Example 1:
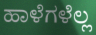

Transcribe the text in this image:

ಹಾಳೆಗಳೆಲ್ಲ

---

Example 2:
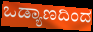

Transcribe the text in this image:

ಒಡ್ಯಾಣದಿಂದ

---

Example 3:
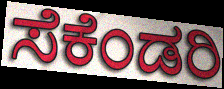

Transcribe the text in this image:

ಸೆಕೆಂಡರಿ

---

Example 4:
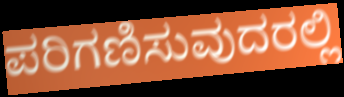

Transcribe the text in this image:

ಪರಿಗಣಿಸುವುದರಲ್ಲಿ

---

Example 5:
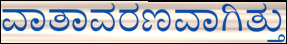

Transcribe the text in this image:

ವಾತಾವರಣವಾಗಿತ್ತು